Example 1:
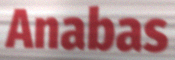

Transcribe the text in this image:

Anabas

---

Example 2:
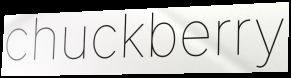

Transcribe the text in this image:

chuckberry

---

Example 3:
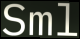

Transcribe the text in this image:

Sml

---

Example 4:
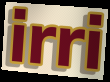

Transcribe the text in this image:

irri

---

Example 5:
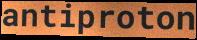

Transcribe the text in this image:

antiproton